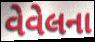
વેવેલના